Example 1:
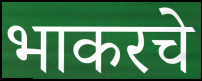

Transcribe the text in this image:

भाकरचे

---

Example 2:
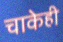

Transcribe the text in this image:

चाकेही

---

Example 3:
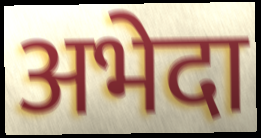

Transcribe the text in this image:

अभेदा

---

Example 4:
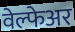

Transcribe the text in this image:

वेल्फेअर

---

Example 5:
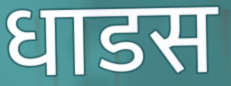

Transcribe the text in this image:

धाडस